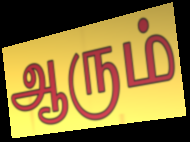
ஆரும்